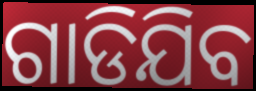
ଗାଡିଯିବ